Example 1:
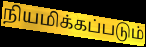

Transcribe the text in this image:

நியமிக்கப்படும்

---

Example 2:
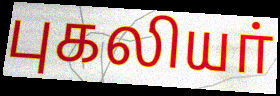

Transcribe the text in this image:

புகலியர்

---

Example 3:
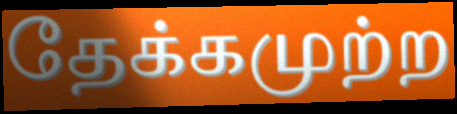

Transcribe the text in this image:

தேக்கமுற்ற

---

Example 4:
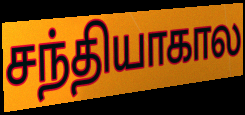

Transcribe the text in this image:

சந்தியாகால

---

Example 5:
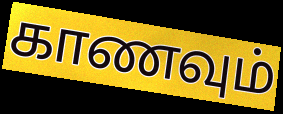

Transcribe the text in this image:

காணவும்